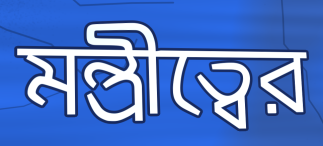
মন্ত্রীত্বের